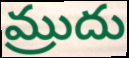
మ్రుదు